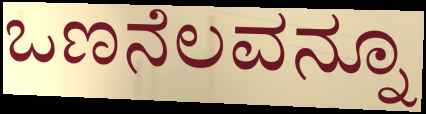
ಒಣನೆಲವನ್ನೂ